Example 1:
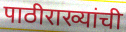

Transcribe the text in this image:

पाठीराख्यांची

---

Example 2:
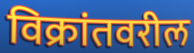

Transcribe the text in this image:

विक्रांतवरील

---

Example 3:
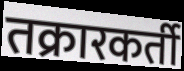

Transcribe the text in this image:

तक्रारकर्ती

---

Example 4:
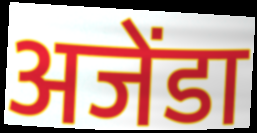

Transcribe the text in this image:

अजेंडा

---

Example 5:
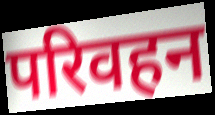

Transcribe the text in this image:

परिवहन